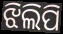
ଝିଲିପି